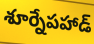
శూర్నేపహాడ్